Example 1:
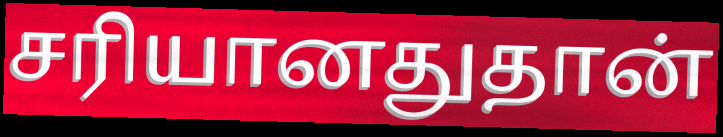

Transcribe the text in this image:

சரியானதுதான்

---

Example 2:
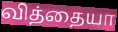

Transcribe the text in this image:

வித்தையா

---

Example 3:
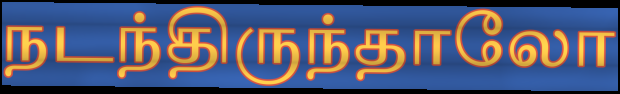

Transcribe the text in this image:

நடந்திருந்தாலோ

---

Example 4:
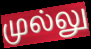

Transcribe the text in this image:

முல்லு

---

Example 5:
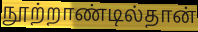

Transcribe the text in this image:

நூற்றாண்டில்தான்